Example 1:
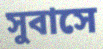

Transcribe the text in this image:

সুবাসে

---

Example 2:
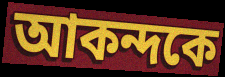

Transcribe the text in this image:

আকন্দকে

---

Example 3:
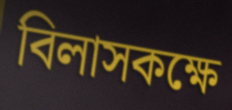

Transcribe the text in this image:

বিলাসকক্ষে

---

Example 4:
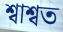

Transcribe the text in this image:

শ্বাশ্বত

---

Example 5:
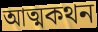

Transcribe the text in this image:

আত্মকথন